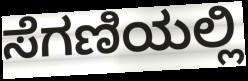
ಸೆಗಣಿಯಲ್ಲಿ